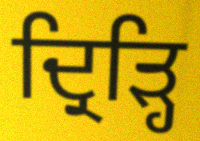
ਦ੍ਰਿੜ੍ਹਿ